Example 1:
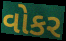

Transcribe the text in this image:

વોકર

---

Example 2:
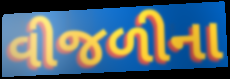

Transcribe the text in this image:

વીજળીના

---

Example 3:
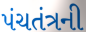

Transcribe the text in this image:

પંચતંત્રની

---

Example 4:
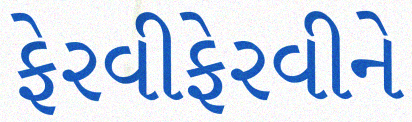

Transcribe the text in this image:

ફેરવીફેરવીને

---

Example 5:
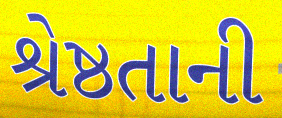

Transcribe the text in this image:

શ્રેષ્ઠતાની